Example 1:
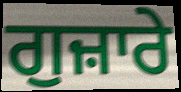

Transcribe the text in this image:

ਗੁਜ਼ਾਰੇ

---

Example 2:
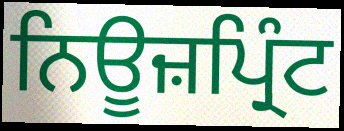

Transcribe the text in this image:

ਨਿਊਜ਼ਪ੍ਰਿੰਟ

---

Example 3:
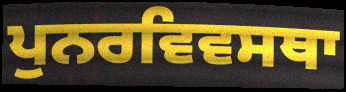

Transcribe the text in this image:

ਪੁਨਰਵਿਵਸਥਾ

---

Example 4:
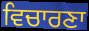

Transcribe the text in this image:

ਵਿਚਾਰਣਾ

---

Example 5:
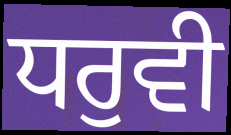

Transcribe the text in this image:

ਧਰੁਵੀ